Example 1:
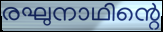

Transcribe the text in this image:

രഘുനാഥിന്റെ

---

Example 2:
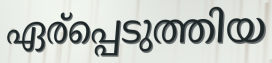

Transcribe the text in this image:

ഏര്പ്പെടുത്തിയ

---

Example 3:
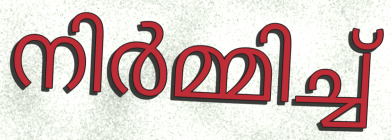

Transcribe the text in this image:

നിർമ്മിച്ച്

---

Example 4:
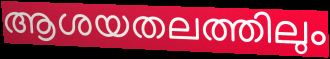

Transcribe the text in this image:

ആശയതലത്തിലും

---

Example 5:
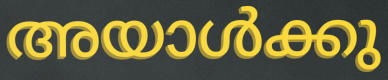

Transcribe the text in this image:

അയാൾക്കു